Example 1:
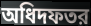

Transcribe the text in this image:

অধিদফতর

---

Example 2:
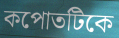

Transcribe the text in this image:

কপোতটিকে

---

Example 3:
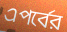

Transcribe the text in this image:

এপর্বের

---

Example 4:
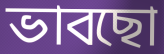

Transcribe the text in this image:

ভাবছো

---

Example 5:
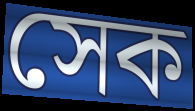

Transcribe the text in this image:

সেক